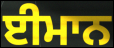
ਈਮਾਨ